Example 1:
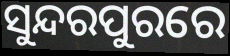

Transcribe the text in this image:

ସୁନ୍ଦରପୁରରେ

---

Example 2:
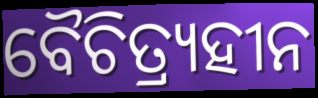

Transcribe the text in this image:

ବୈଚିତ୍ର୍ୟହୀନ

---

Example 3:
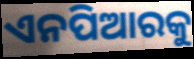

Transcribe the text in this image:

ଏନପିଆରକୁ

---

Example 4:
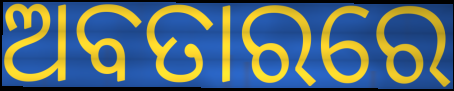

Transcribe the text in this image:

ଅବତାରରେ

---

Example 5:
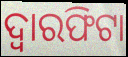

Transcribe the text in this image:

ଦ୍ୱାରଫିଟା